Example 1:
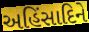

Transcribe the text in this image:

અહિંસાદિને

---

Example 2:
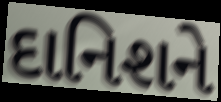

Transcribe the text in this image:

દાનિશને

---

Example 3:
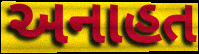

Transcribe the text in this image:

અનાહત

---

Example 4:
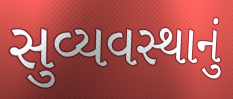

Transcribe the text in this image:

સુવ્યવસ્થાનું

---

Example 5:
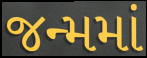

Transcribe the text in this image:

જન્મમાં